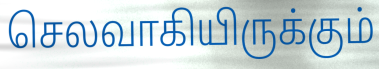
செலவாகியிருக்கும்